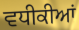
ਵਧੀਕੀਆਂ